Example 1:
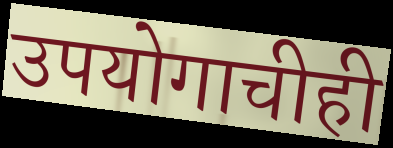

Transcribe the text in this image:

उपयोगाचीही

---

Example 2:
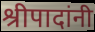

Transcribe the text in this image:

श्रीपादांनी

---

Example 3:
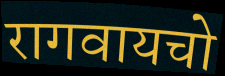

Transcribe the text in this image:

रागवायचो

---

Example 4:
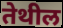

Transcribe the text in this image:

तेथील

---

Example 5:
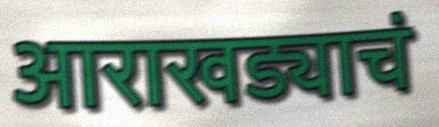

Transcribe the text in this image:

आराखड्याचं